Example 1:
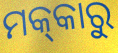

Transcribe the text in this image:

ମକ୍‌କାରୁ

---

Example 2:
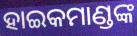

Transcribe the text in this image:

ହାଇକମାଣ୍ଡଙ୍କ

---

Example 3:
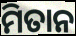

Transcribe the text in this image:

ମିତାନ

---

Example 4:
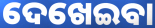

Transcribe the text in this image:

ଦେଖେଇବା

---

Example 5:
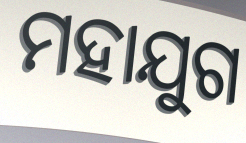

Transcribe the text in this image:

ମହାଯୁଗ